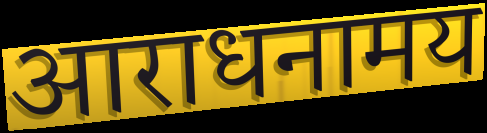
आराधनामय